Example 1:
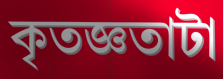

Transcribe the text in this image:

কৃতজ্ঞতাটা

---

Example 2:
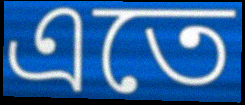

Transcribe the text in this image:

এতে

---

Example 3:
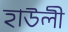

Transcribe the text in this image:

হাউলী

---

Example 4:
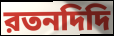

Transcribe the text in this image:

রতনদিদি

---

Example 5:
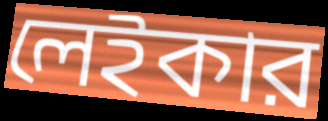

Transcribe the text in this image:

লেইকার